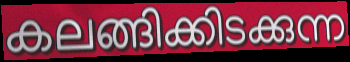
കലങ്ങിക്കിടക്കുന്ന